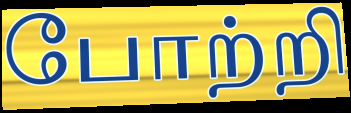
போற்றி